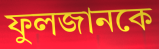
ফুলজানকে